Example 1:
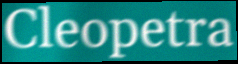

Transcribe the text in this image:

Cleopetra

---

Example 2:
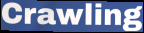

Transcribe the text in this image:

Crawling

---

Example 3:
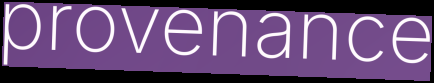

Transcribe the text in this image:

provenance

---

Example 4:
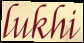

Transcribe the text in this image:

lukhi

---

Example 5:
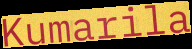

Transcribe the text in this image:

Kumarila